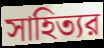
সাহিত্যর